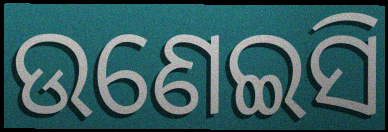
ଉଣେଇସି